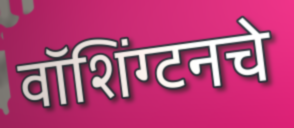
वॉशिंग्टनचे